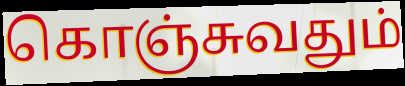
கொஞ்சுவதும்